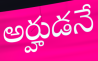
అర్హుడనే